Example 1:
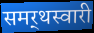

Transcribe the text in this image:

समर्थस्वारी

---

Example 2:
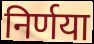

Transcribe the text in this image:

निर्णया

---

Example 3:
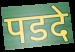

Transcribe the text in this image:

पडदे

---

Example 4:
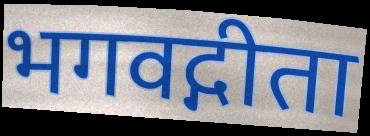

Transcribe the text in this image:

भगवद्गीता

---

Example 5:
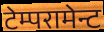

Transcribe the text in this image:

टेम्परामेन्ट